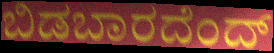
ಬಿಡಬಾರದೆಂದ್